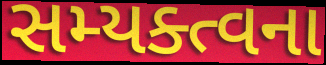
સમ્યક્ત્વના